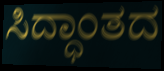
ಸಿದ್ಧಾಂತದ